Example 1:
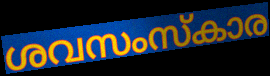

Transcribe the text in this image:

ശവസംസ്കാര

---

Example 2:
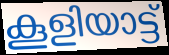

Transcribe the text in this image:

കൂളിയാട്ട്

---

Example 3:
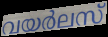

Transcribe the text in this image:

വയർലസ്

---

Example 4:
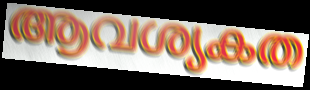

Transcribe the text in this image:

ആവശ്യകത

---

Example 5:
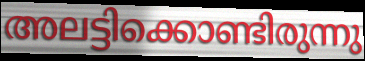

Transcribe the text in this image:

അലട്ടിക്കൊണ്ടിരുന്നു